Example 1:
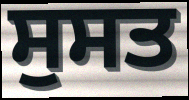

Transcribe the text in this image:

ਸੁਸਤ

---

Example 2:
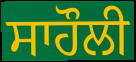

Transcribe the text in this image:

ਸਾਹੌਲੀ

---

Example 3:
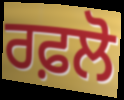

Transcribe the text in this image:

ਰਫ਼ਲੋ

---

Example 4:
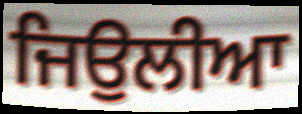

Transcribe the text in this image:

ਜਿਉਲੀਆ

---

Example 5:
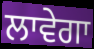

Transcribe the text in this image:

ਲਾਵੇਗਾ